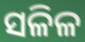
ସଳିଳ